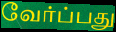
வேர்ப்பது